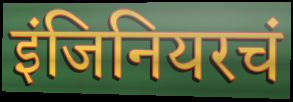
इंजिनियरचं